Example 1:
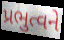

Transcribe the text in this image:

પ્રભુત્વને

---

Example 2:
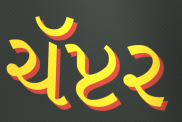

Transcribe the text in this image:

ચૅપ્ટર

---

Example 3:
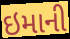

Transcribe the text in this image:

ઇમાની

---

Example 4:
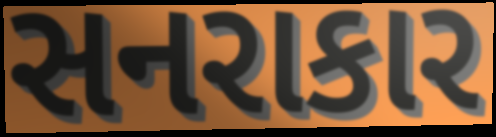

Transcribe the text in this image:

સનરાકાર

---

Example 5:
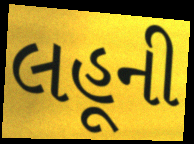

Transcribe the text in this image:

લહૂની